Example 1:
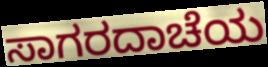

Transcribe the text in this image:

ಸಾಗರದಾಚೆಯ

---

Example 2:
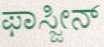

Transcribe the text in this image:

ಫಾಸ್ಜೀನ್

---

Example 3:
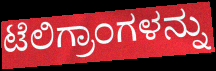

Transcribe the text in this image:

ಟೆಲಿಗ್ರಾಂಗಳನ್ನು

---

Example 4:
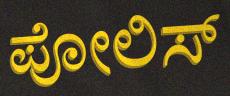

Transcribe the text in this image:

ಪೋಲಿಸ್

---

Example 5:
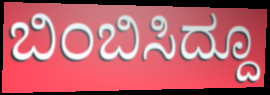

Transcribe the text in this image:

ಬಿಂಬಿಸಿದ್ದೂ